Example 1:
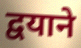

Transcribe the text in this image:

द्वयाने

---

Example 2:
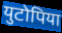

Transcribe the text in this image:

युटोपिया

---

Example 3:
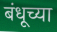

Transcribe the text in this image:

बंधूच्या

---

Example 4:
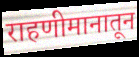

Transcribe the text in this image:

राहणीमानातून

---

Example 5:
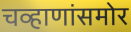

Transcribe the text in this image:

चव्हाणांसमोर